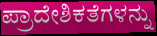
ಪ್ರಾದೇಶಿಕತೆಗಳನ್ನು